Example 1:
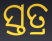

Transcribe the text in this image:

ସ୍ତତ୍ର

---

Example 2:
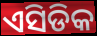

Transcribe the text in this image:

ଏସିଡିକ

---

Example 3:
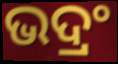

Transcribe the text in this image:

ଭଦ୍ରଂ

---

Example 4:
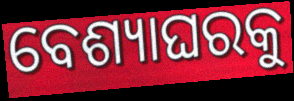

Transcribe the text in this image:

ବେଶ୍ୟାଘରକୁ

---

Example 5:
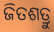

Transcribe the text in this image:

ଜିତଶତ୍ରୁ